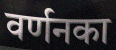
वर्णनका